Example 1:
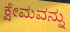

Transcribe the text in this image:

ಕ್ಷೇಮವನ್ನು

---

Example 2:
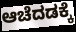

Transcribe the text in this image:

ಆಚೆದಡಕ್ಕೆ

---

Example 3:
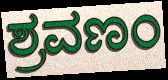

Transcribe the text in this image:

ಶ್ರವಣಂ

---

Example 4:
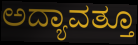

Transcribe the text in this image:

ಅದ್ಯಾವತ್ತೂ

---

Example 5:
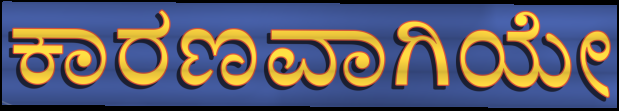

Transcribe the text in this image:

ಕಾರಣವಾಗಿಯೇ